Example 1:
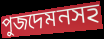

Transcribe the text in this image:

পুজদেমনসহ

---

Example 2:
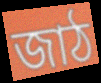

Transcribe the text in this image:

জাঠ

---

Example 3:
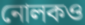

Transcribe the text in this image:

নোলকও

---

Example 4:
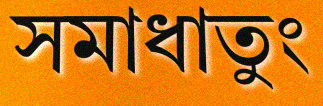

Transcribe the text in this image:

সমাধাতুং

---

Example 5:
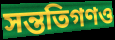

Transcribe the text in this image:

সন্ততিগণও